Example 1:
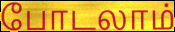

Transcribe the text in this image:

போடலாம்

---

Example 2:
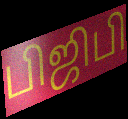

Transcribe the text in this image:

பிஜிபி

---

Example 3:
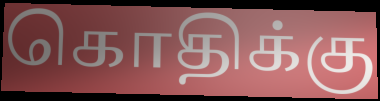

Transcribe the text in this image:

கொதிக்கு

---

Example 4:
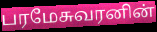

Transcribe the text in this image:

பரமேசுவரனின்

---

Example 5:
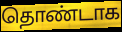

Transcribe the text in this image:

தொண்டாக